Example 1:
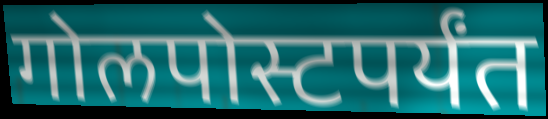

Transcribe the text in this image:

गोलपोस्टपर्यंत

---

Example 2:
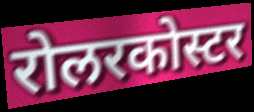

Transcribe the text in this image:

रोलरकोस्टर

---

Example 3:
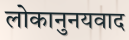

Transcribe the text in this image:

लोकानुनयवाद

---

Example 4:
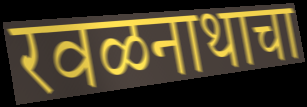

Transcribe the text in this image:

रवळनाथाचा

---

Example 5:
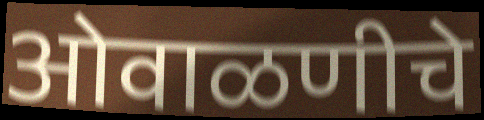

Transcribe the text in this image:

ओवाळणीचे